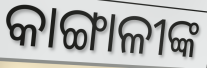
କାଙ୍ଗାଳୀଙ୍କ